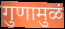
गुणामुळं